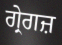
ਗ੍ਰੇਗਜ਼